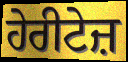
ਹੇਰੀਟੇਜ਼